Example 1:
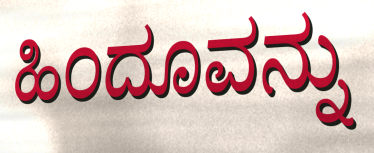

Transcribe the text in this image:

ಹಿಂದೂವನ್ನು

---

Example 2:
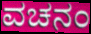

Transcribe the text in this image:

ವಚನಂ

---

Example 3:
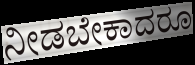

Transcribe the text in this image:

ನೀಡಬೇಕಾದರೂ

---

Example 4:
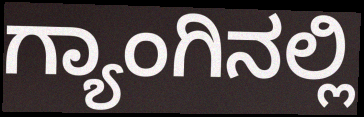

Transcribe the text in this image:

ಗ್ಯಾಂಗಿನಲ್ಲಿ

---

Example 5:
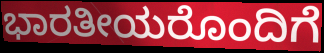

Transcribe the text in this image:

ಭಾರತೀಯರೊಂದಿಗೆ